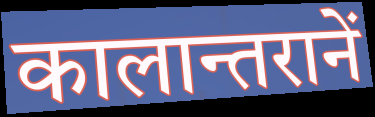
कालान्तरानें